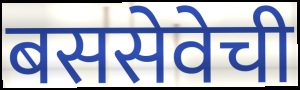
बससेवेची